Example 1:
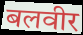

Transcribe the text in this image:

बलवीर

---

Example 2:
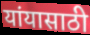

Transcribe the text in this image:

यांयासाठी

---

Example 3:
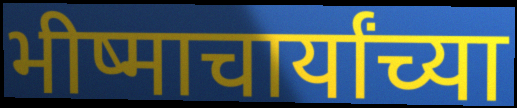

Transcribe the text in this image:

भीष्माचार्यांच्या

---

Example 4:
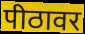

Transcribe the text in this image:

पीठावर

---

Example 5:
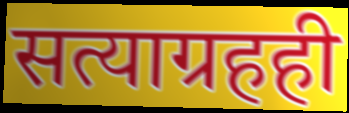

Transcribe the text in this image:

सत्याग्रहही